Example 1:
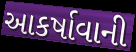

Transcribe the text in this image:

આકર્ષાવાની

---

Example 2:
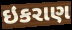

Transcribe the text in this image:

ઇકરાણ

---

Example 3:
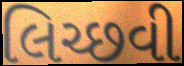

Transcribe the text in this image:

લિચ્છવી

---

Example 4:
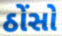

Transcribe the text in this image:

ઠોંસો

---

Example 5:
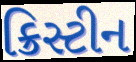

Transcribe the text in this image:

ક્રિસ્ટીન